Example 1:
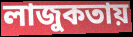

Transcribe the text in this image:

লাজুকতায়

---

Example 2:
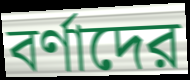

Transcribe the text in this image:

বর্ণাদের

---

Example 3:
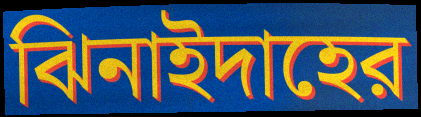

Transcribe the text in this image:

ঝিনাইদাহের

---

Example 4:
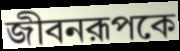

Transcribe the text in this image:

জীবনরূপকে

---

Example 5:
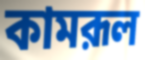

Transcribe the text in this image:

কামরূল